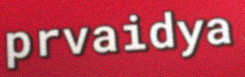
prvaidya